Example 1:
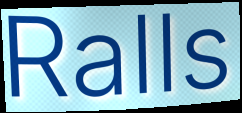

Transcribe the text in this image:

Ralls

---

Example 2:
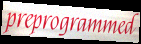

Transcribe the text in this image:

preprogrammed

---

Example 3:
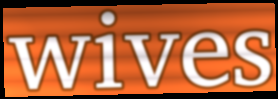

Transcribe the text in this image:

wives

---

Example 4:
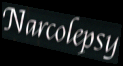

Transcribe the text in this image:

Narcolepsy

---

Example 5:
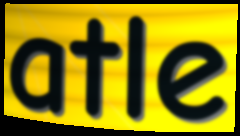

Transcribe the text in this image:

atle